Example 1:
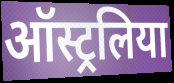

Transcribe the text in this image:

ऑस्ट्रलिया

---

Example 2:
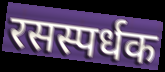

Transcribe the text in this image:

रसस्पर्धक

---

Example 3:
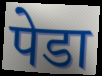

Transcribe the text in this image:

पेडा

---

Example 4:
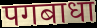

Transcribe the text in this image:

पगबाधा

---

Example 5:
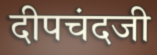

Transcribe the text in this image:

दीपचंदजी